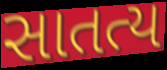
સાતત્ય